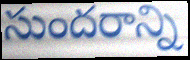
సుందరాన్ని